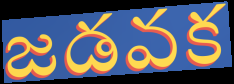
జడవక